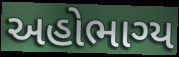
અહોભાગ્ય